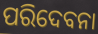
ପରିଦେବନା